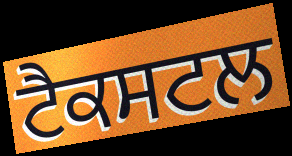
ਟੈਕਸਟਲ